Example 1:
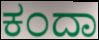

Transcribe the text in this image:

ಕಂದಾ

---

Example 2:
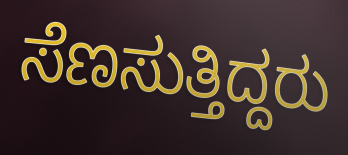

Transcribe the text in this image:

ಸೆಣಸುತ್ತಿದ್ದರು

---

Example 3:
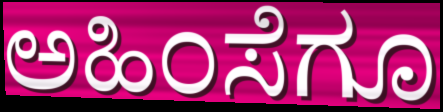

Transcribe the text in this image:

ಅಹಿಂಸೆಗೂ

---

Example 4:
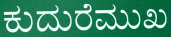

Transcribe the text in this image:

ಕುದುರೆಮುಖ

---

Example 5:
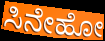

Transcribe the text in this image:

ಸಿನೇಹೋ